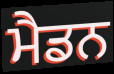
ਮੈਡਨ